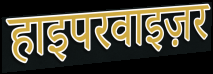
हाइपरवाइज़र